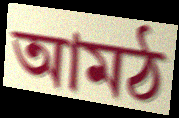
আমঠ